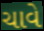
ચાવે